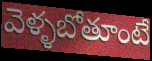
వెళ్ళబోతూంటే